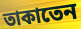
তাকাতেন